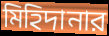
মিহিদানার